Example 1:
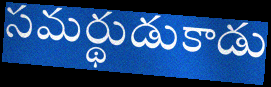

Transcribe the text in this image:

సమర్థుడుకాడు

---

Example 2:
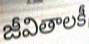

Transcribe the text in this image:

జీవితాలకీ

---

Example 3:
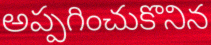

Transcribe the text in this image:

అప్పగించుకొనిన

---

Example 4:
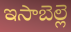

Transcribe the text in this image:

ఇసాబెల్లె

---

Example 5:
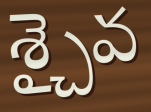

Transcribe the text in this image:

శ్చైవ